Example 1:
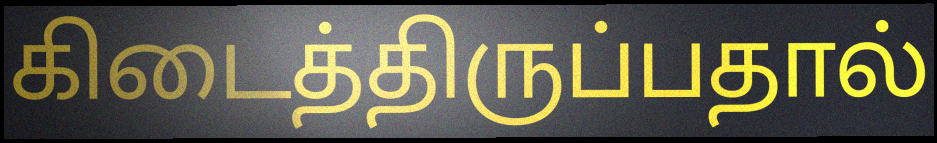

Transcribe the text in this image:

கிடைத்திருப்பதால்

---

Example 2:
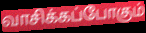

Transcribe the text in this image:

வாசிக்கப்போகும்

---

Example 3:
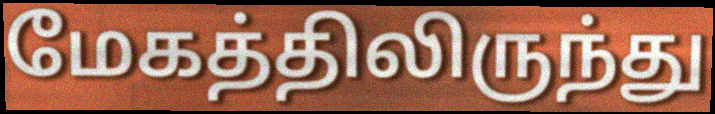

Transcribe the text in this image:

மேகத்திலிருந்து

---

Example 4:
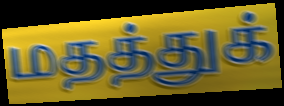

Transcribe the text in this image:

மதத்துக்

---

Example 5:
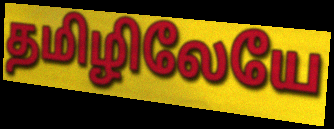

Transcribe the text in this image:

தமிழிலேயே